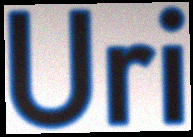
Uri